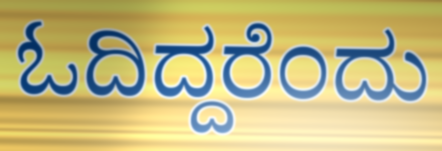
ಓದಿದ್ದರೆಂದು